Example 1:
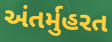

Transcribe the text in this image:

અંતર્મુહરત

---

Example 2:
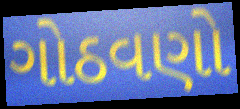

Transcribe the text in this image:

ગોઠવણો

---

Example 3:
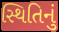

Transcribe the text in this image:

સ્થિતિનું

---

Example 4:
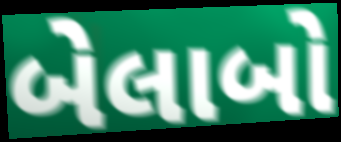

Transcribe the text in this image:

બેલાબો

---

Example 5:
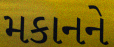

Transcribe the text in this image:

મકાનને